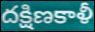
దక్షిణకాళీ